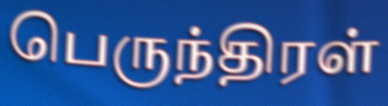
பெருந்திரள்